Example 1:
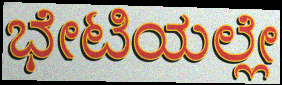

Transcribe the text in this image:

ಭೇಟಿಯಲ್ಲೇ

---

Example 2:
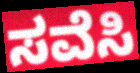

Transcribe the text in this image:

ಸವೆಸಿ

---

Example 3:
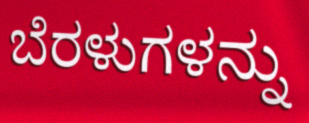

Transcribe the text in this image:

ಬೆರಳುಗಳನ್ನು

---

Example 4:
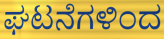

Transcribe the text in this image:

ಘಟನೆಗಳಿಂದ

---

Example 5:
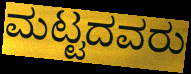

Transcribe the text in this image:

ಮಟ್ಟದವರು